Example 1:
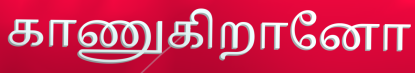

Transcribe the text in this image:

காணுகிறானோ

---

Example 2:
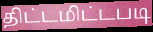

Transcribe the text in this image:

திட்டமிட்டபடி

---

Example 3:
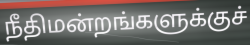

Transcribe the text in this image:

நீதிமன்றங்களுக்குச்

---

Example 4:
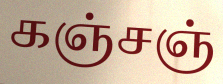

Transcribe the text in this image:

கஞ்சஞ்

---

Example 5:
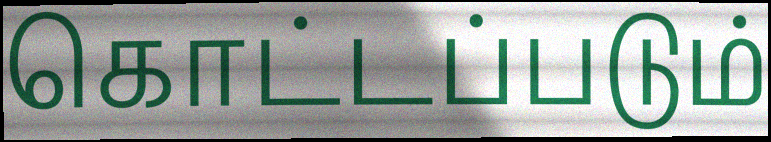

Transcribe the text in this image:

கொட்டப்படும்